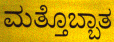
ಮತ್ತೊಬ್ಬಾತ